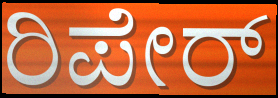
ರಿಪೇರ್